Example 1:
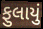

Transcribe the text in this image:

ફુલાયું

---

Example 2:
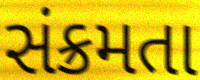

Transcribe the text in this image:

સંક્રમતા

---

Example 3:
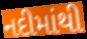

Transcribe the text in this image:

નદીમાંથી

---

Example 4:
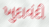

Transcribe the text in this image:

ખુદાવંદી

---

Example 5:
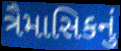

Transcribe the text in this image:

ત્રૈમાસિકનું